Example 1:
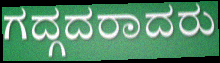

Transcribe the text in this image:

ಗದ್ಗದರಾದರು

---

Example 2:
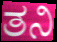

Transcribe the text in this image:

ತನಿ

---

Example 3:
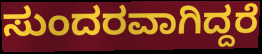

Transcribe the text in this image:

ಸುಂದರವಾಗಿದ್ದರೆ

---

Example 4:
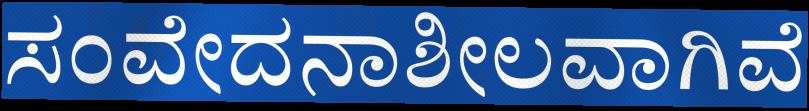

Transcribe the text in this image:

ಸಂವೇದನಾಶೀಲವಾಗಿವೆ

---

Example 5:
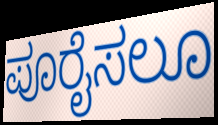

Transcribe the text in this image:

ಪೂರೈಸಲೂ